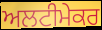
ਅਲਟੀਮੇਕਰ